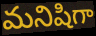
మనిషిగా